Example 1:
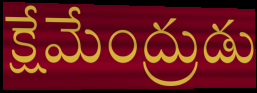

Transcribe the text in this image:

క్షేమేంద్రుడు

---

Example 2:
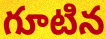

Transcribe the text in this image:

గూటిన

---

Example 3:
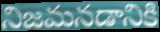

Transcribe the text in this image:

నిజమనడానికి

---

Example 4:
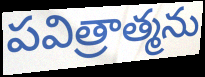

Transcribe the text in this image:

పవిత్రాత్మను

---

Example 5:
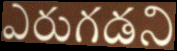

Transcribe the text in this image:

ఎరుగడని